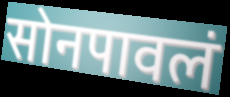
सोनपावलं